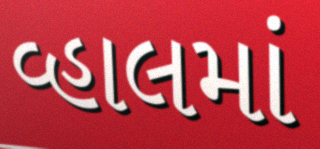
વ્હાલમાં